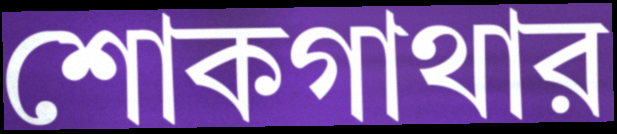
শোকগাথার